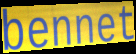
bennet